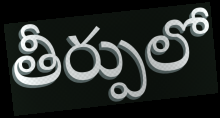
తీర్పులో